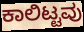
ಕಾಲಿಟ್ಟವು